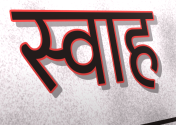
स्वाह